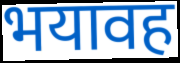
भयावह